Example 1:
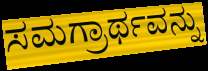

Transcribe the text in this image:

ಸಮಗ್ರಾರ್ಥವನ್ನು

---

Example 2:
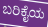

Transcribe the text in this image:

ಬರಿಕೈಯ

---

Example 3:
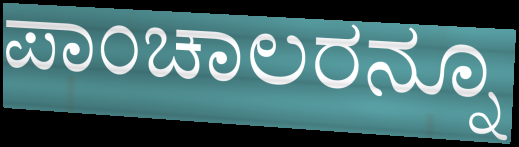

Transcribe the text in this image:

ಪಾಂಚಾಲರನ್ನೂ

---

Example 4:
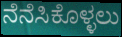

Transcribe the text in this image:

ನೆನೆಸಿಕೊಳ್ಳಲು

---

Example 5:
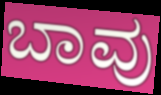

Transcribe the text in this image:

ಬಾವು